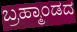
ಬ್ರಹ್ಮಾಂಡದ